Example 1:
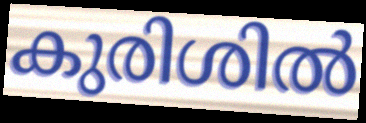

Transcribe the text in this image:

കുരിശിൽ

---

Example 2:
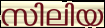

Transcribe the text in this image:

സിലിയ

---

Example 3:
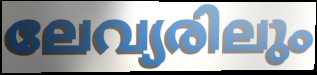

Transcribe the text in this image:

ലേവ്യരിലും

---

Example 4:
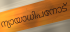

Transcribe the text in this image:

ന്യായാധിപനോട്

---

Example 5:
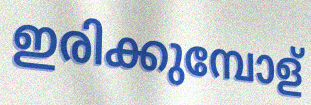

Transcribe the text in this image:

ഇരിക്കുമ്പോള്